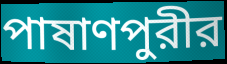
পাষাণপুরীর